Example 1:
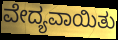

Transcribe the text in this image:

ವೇದ್ಯವಾಯಿತು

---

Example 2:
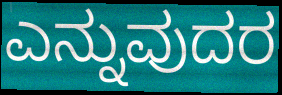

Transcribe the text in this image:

ಎನ್ನುವುದರ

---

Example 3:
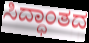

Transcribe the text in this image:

ಸಿದ್ಧಾಂತದ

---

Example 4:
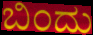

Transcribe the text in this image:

ಬಿಂದು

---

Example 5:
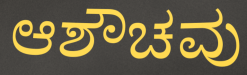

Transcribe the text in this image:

ಆಶೌಚವು